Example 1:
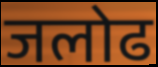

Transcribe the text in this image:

जलोढ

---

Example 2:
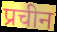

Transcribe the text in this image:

प्रचीन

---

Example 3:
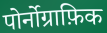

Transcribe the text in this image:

पोर्नोग्राफ़िक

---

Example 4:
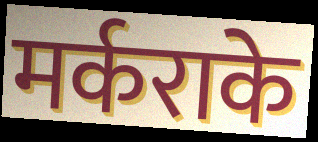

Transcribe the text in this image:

मर्कराके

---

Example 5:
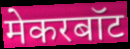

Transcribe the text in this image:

मेकरबॉट